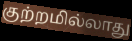
குற்றமில்லாது